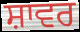
ਸ਼ਾਵਰ